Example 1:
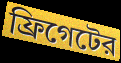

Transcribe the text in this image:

ফ্রিগেটের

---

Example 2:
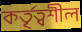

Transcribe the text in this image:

কর্তৃত্বশীল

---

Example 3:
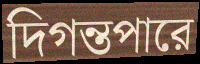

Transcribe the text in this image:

দিগন্তপারে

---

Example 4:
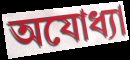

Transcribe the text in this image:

অযোধ্যা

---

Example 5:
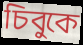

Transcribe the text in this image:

চিবুকে